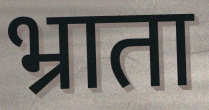
भ्राता